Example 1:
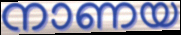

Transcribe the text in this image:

നാണയ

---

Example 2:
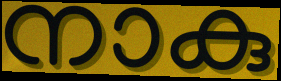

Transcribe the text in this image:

നാകു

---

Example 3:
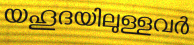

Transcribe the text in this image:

യഹൂദയിലുള്ളവർ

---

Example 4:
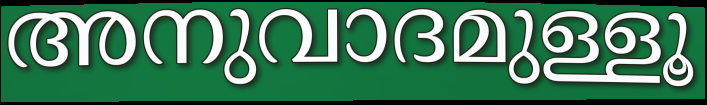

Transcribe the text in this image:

അനുവാദമുള്ളൂ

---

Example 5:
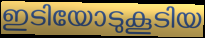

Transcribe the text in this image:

ഇടിയോടുകൂടിയ